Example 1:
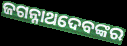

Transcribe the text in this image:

ଜଗନ୍ନାଥଦେବଙ୍କର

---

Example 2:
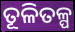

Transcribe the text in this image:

ତୂଳିତଳ୍ପ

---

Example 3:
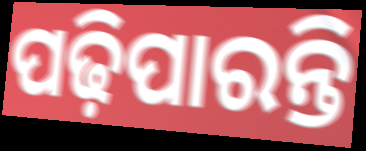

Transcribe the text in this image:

ପଢ଼ିପାରନ୍ତି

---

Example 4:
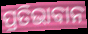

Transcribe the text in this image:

ପ୍ରତିଭାବାନ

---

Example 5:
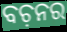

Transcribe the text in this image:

ବଚ଼ନର